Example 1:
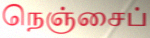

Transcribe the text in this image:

நெஞ்சைப்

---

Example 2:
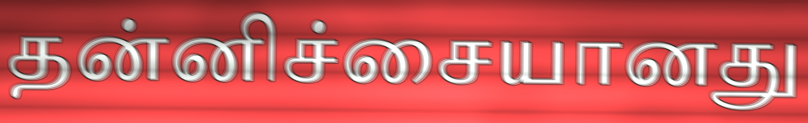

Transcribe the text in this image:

தன்னிச்சையானது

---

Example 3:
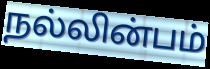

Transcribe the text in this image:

நல்லின்பம்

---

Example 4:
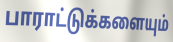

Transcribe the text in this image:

பாராட்டுக்களையும்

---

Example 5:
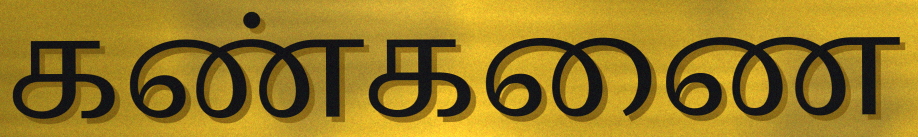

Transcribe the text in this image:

கண்கணை